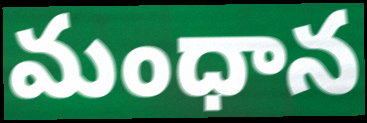
మంధాన